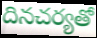
దినచర్యతో